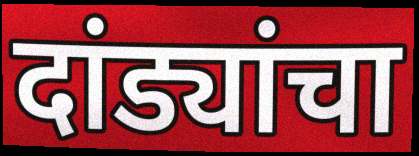
दांड्यांचा